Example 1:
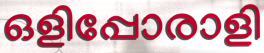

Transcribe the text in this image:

ഒളിപ്പോരാളി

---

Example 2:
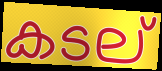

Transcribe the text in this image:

കടല്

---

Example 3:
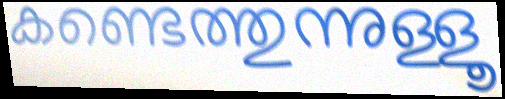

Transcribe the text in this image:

കണ്ടെത്തുന്നുള്ളൂ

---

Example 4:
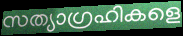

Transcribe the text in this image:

സത്യാഗ്രഹികളെ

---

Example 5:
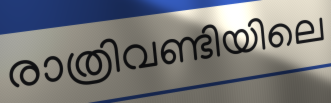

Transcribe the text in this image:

രാത്രിവണ്ടിയിലെ